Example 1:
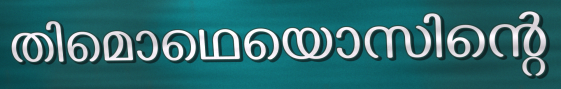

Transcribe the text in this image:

തിമൊഥെയൊസിന്റെ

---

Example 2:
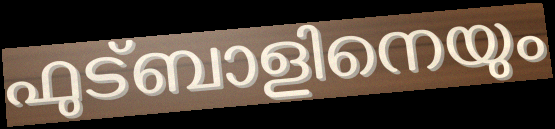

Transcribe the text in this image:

ഫുട്ബാളിനെയും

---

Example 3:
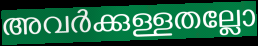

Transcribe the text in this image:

അവർക്കുള്ളതല്ലോ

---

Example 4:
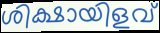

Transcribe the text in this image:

ശിക്ഷായിളവ്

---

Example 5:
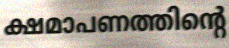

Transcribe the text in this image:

ക്ഷമാപണത്തിന്റെ